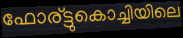
ഫോര്ട്ടുകൊച്ചിയിലെ